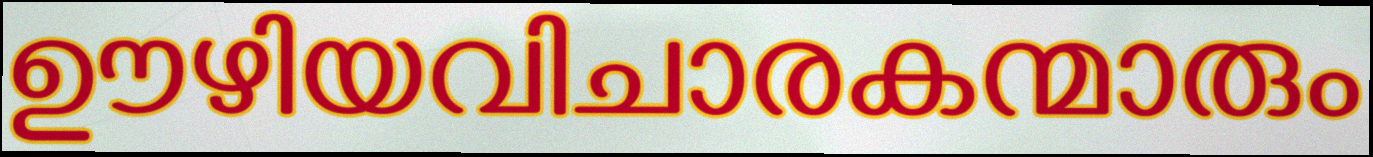
ഊഴിയവിചാരകന്മാരും